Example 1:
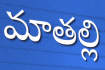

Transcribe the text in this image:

మాతల్లి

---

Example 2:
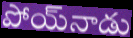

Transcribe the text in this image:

పోయ్‌నాడు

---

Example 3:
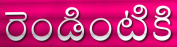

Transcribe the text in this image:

రెండింటికి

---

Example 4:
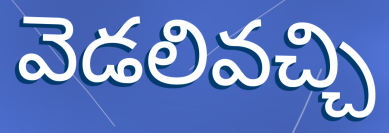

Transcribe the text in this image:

వెడలివచ్చి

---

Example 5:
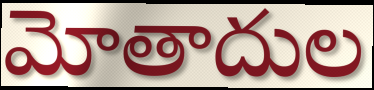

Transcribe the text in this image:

మోతాదుల